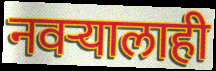
नवऱ्यालाही